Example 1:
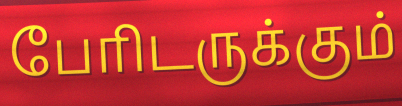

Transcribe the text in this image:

பேரிடருக்கும்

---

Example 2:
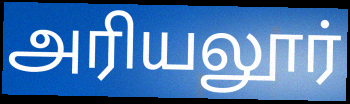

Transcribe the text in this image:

அரியலூர்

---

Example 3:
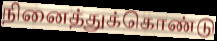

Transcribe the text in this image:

நினைத்துக்கொண்டு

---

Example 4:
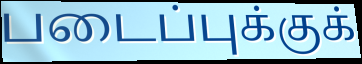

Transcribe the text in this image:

படைப்புக்குக்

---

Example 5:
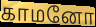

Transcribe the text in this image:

காமனோ